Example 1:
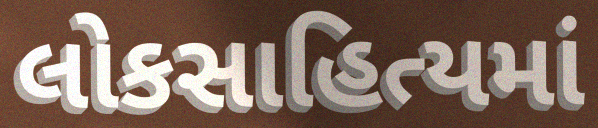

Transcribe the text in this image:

લોકસાહિત્યમાં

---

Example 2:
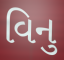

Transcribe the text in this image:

વિનુ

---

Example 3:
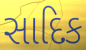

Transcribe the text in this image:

સાદિક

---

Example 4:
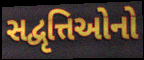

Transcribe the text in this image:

સદ્વૃત્તિઓનો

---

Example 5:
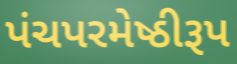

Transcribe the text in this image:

પંચપરમેષ્ઠીરૂપ